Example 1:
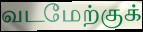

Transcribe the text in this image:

வடமேற்குக்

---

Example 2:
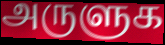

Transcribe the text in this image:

அருளுக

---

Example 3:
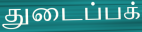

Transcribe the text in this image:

துடைப்பக்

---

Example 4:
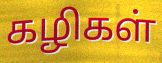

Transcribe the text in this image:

கழிகள்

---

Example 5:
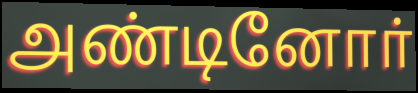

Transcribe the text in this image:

அண்டினோர்